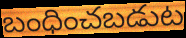
బంధించబడుట